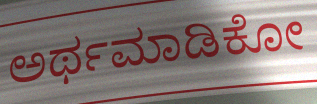
ಅರ್ಥಮಾಡಿಕೋ